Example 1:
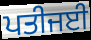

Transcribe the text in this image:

ਪਤੀਜਈ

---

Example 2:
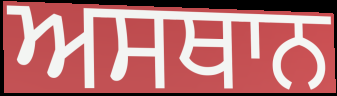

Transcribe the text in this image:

ਅਸਥਾਨ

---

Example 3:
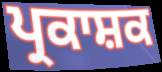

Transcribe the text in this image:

ਪ੍ਰਕਾਸ਼ਕ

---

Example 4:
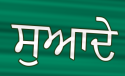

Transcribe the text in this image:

ਸੁਆਦੇ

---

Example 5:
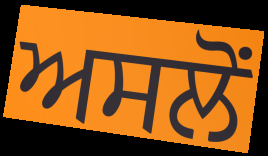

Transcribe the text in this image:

ਅਸਲੋਂ